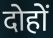
दोहों